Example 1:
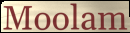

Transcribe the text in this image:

Moolam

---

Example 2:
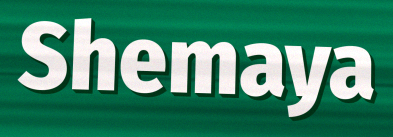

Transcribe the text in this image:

Shemaya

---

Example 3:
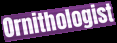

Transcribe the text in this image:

Ornithologist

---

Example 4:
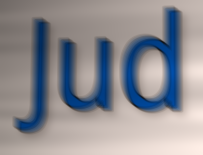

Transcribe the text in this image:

Jud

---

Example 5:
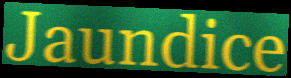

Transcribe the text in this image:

Jaundice